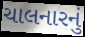
ચાલનારનું